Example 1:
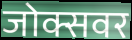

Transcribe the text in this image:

जोक्सवर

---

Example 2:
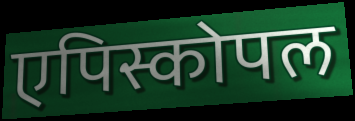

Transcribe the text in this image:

एपिस्कोपल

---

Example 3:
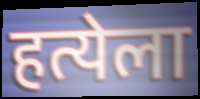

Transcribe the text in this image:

हत्येला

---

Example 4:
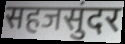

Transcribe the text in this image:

सहजसुंदर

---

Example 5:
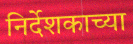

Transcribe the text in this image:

निर्देशकाच्या